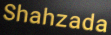
Shahzada